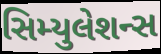
સિમ્યુલેશન્સ